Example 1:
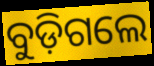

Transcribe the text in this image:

ବୁଡ଼ିଗଲେ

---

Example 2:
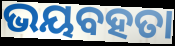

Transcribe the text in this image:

ଭୟବହତା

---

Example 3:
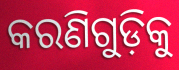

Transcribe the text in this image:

କରଣିଗୁଡ଼ିକୁ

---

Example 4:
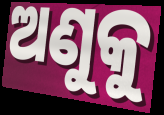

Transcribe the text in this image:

ଅଣୁକୁ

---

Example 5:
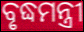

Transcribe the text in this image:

ବୃଦ୍ଧମନ୍ତ୍ରୀ